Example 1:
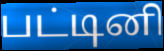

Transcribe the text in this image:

பட்டினி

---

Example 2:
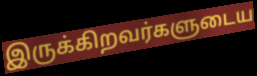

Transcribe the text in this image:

இருக்கிறவர்களுடைய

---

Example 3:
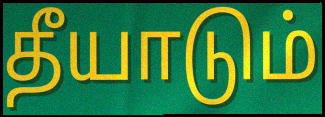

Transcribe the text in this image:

தீயாடும்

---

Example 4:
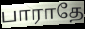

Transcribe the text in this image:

பாராதே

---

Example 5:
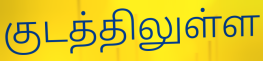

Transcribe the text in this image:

குடத்திலுள்ள